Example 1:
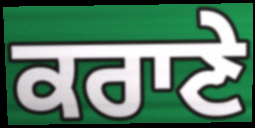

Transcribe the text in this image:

ਕਰਾਣੇ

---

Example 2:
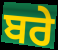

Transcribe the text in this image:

ਬਰੇ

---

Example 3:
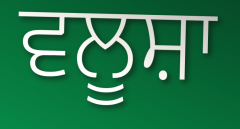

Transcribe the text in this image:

ਵਲੂਸ਼ਾ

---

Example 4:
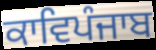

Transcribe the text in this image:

ਕਾਵਿਪੰਜਾਬ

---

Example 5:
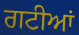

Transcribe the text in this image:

ਗਟੀਆਂ